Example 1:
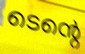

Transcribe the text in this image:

ടെന്റെ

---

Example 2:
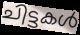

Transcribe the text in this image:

ചിട്ടകൾ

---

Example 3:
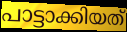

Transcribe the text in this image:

പാട്ടാക്കിയത്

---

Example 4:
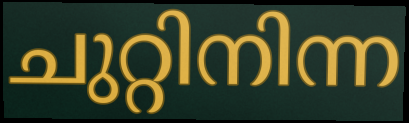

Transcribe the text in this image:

ചുറ്റിനിന്ന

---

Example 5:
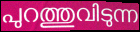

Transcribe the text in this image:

പുറത്തുവിടുന്ന